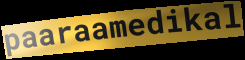
paaraamedikal